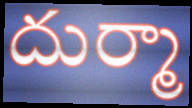
దుర్మా